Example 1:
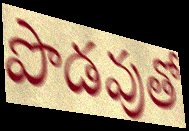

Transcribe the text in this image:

పొడవుతో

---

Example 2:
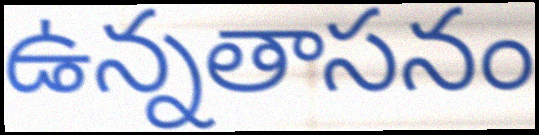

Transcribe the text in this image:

ఉన్నతాసనం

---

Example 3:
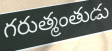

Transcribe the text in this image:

గరుత్మంతుడు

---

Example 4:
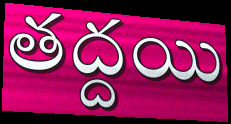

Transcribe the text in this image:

తద్దయి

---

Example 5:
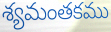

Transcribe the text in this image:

శ్యమంతకము